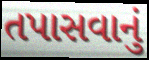
તપાસવાનું